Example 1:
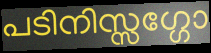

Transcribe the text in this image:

പടിനിസ്സഗ്ഗോ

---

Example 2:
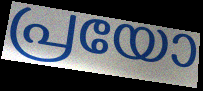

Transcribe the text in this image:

പ്രയോ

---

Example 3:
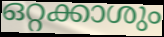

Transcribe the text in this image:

ഒറ്റക്കാശും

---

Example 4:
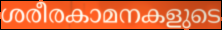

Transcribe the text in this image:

ശരീരകാമനകളുടെ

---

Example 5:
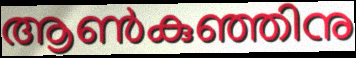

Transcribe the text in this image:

ആൺകുഞ്ഞിനു